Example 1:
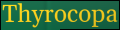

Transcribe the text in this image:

Thyrocopa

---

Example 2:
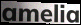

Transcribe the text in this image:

amelia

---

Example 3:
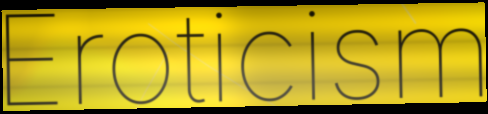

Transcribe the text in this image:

Eroticism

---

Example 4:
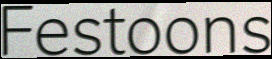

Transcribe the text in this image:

Festoons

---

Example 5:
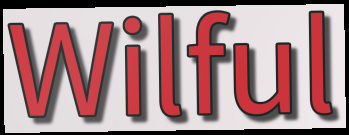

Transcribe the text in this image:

Wilful